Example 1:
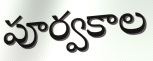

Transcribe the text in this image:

పూర్వకాల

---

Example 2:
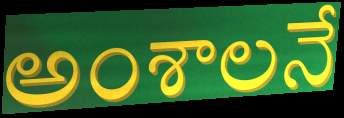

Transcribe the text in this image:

అంశాలనే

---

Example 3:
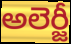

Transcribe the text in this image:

అలెర్జీ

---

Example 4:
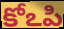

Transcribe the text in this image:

కోఽపి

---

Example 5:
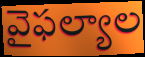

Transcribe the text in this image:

వైఫల్యాల